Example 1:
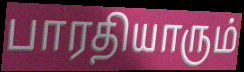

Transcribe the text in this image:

பாரதியாரும்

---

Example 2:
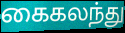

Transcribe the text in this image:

கைகலந்து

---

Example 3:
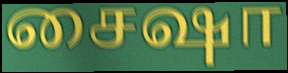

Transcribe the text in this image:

சைஷா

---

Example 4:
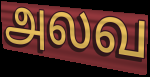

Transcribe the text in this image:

அலவ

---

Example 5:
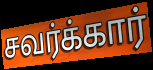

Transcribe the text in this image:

சவர்க்கார்